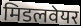
मिडलवेयर